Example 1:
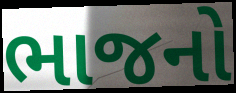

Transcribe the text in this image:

ભાજનો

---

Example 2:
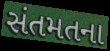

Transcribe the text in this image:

સંતમતના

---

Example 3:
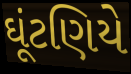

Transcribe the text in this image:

ઘૂંટણિયે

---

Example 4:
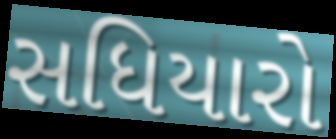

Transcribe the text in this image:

સધિયારો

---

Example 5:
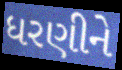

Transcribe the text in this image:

ધરણીને